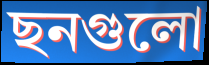
ছনগুলো